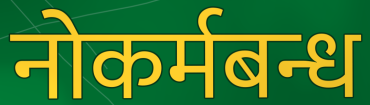
नोकर्मबन्ध